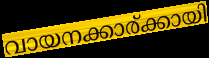
വായനക്കാര്ക്കായി